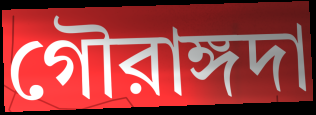
গৌরাঙ্গদা